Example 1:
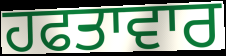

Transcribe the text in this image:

ਹਫਤਾਵਾਰ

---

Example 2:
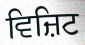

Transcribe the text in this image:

ਵਿਜ਼ਿਟ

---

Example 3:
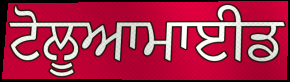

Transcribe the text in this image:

ਟੋਲੂਆਮਾਈਡ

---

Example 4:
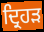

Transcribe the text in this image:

ਦ੍ਰਿਹੜ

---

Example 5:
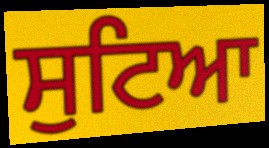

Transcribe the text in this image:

ਸੁਟਿਆ